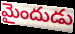
మైందుడు